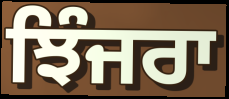
ਝਿੰਜਰਾ